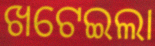
ଖଟେଇଲା